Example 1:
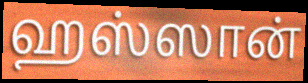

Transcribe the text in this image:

ஹஸ்ஸான்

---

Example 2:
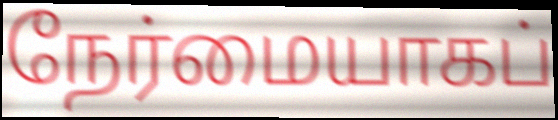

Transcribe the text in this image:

நேர்மையாகப்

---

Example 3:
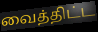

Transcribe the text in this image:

வைத்திட்ட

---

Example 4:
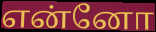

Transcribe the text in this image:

என்னோ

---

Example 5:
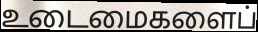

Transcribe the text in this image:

உடைமைகளைப்